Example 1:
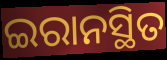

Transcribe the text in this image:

ଇରାନସ୍ଥିତ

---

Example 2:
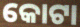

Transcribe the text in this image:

କୋଟା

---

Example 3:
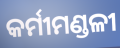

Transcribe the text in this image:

କର୍ମୀମଣ୍ଡଳୀ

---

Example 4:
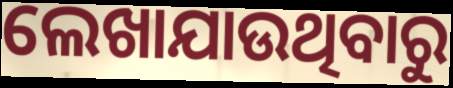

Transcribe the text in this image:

ଲେଖାଯାଉଥିବାରୁ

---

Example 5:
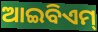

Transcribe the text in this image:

ଆଇବିଏମ୍